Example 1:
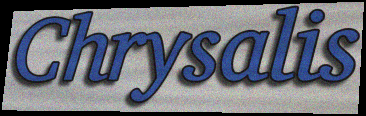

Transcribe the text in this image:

Chrysalis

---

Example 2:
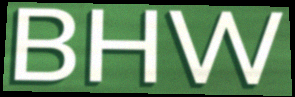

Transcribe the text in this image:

BHW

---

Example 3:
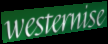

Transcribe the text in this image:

westernise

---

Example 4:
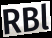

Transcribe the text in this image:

RBl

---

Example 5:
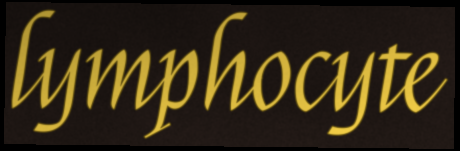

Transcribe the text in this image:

lymphocyte